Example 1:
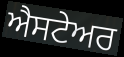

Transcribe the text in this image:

ਐਸਟੇਅਰ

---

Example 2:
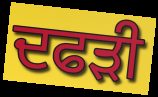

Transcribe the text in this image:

ਦਫੜੀ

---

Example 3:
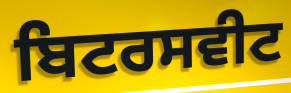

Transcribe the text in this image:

ਬਿਟਰਸਵੀਟ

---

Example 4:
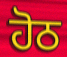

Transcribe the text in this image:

ਹੋਠ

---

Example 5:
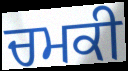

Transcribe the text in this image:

ਚਮਕੀ